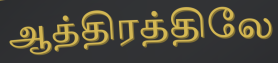
ஆத்திரத்திலே